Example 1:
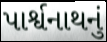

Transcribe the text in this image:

પાર્શ્વનાથનું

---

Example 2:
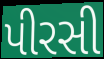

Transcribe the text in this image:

પીરસી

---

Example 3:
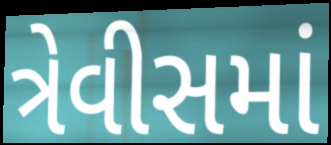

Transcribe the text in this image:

ત્રેવીસમાં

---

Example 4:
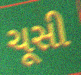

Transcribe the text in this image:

ચૂસી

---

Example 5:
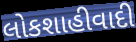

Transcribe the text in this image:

લોકશાહીવાદી